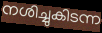
നശിച്ചുകിടന്ന